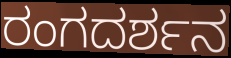
ರಂಗದರ್ಶನ